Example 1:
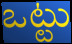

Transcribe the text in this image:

ఒట్టు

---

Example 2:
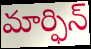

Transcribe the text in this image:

మార్ఫిన్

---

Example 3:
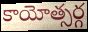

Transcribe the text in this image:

కాయోత్సర్గ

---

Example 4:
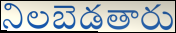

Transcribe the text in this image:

నిలబెడతారు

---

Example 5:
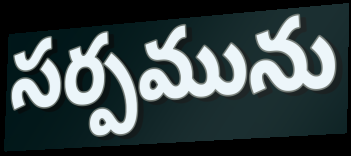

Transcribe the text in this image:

సర్పమును